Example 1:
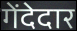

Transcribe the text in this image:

गेंदेदार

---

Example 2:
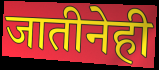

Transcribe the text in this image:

जातीनेही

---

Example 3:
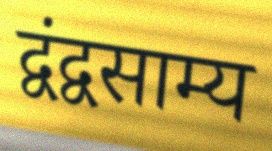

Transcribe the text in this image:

द्वंद्वसाम्य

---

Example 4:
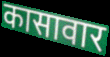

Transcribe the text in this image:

कासावार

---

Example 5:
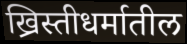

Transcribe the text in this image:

ख्रिस्तीधर्मातील